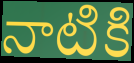
నాటికి